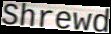
Shrewd